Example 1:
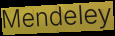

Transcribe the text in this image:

Mendeley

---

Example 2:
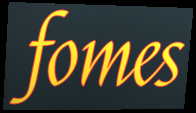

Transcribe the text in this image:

fomes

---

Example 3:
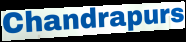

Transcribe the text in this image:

Chandrapurs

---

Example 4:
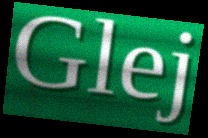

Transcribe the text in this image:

Glej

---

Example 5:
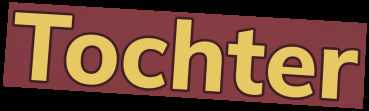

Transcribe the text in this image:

Tochter